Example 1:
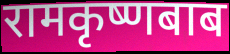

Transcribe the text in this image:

रामकृष्णबाब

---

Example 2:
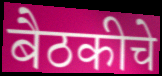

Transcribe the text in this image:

बैठकीचे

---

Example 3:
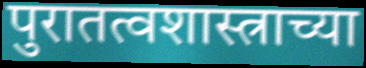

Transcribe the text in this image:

पुरातत्वशास्त्राच्या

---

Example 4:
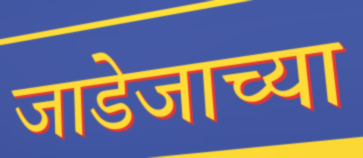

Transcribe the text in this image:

जाडेजाच्या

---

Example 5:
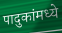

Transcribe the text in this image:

पादुकांमध्ये